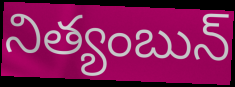
నిత్యంబున్